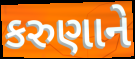
કરુણાને